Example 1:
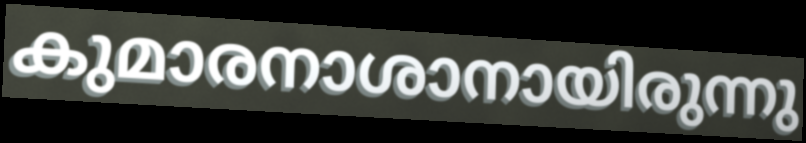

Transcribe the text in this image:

കുമാരനാശാനായിരുന്നു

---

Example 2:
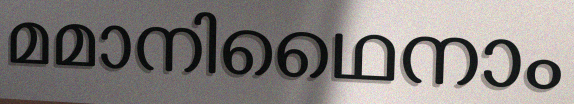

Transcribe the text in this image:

മമാനിഥൈനാം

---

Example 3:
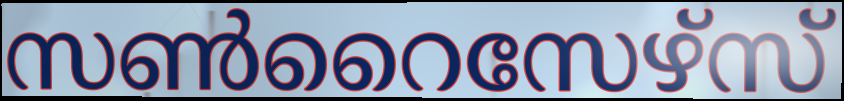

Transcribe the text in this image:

സൺറൈസേഴ്സ്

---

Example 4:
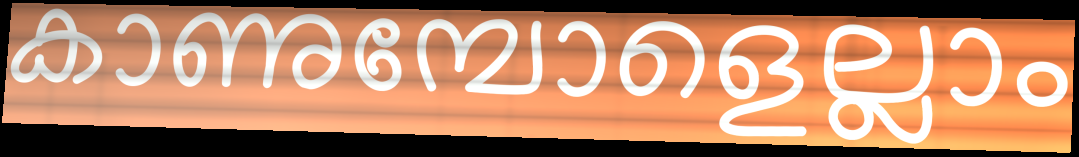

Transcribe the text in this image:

കാണുമ്പോളെല്ലാം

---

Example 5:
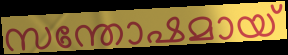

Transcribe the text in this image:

സന്തോഷമായ്